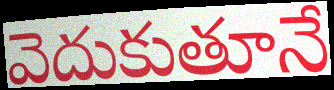
వెదుకుతూనే